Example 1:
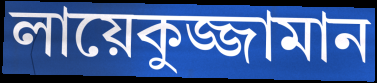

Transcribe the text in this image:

লায়েকুজ্জামান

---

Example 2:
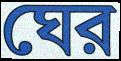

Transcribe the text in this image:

ঘের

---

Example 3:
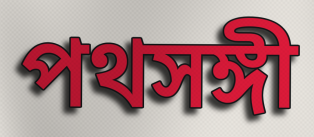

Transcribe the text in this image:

পথসঙ্গী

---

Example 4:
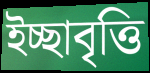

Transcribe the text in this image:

ইচ্ছাবৃত্তি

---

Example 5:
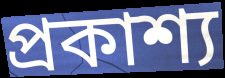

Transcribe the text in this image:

প্রকাশ্য